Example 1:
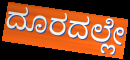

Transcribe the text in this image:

ದೂರದಲ್ಲೇ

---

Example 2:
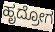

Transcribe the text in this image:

ಹೃದ್ರೋಗ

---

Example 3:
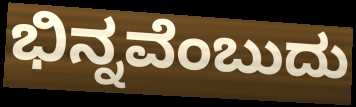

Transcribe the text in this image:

ಭಿನ್ನವೆಂಬುದು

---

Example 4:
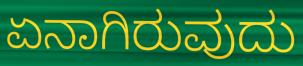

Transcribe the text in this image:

ಏನಾಗಿರುವುದು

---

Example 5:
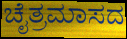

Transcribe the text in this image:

ಚೈತ್ರಮಾಸದ